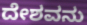
ದೇಶವನು